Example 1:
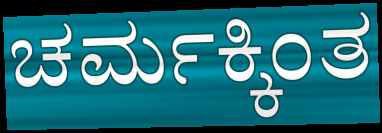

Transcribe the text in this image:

ಚರ್ಮಕ್ಕಿಂತ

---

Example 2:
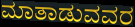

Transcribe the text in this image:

ಮಾತಾಡುವವರ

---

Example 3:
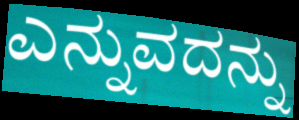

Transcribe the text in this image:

ಎನ್ನುವದನ್ನು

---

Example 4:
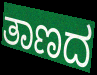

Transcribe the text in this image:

ತಾಣದ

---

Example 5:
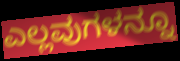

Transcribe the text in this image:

ಎಲ್ಲವುಗಳನ್ನೂ